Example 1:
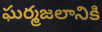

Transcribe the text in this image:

ఘర్మజలానికి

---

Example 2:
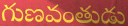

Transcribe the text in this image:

గుణవంతుడు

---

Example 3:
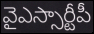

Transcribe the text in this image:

వైఎస్సార్టీపీ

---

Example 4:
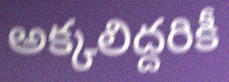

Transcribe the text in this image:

అక్కలిద్దరికీ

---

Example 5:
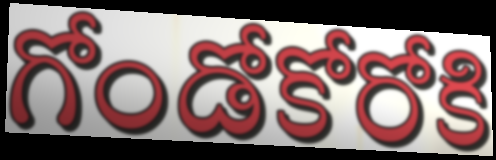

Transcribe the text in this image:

గోండోకోరోకి